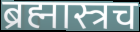
ब्रह्मास्त्रच